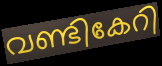
വണ്ടികേറി